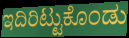
ಇದಿರಿಟ್ಟುಕೊಂಡು